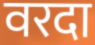
वरदा